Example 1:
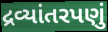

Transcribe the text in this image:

દ્રવ્યાંતરપણું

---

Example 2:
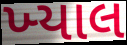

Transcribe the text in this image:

ખ્‍યાલ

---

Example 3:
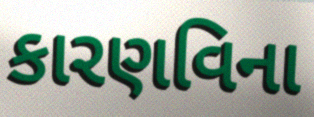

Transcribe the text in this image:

કારણવિના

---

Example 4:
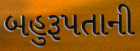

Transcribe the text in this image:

બહુરૂપતાની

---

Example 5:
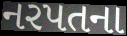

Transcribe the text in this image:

નરપતના